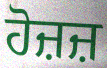
ਹੋਜ਼ਜ਼